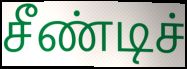
சீண்டிச்